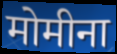
मोमीना